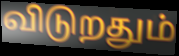
விடுறதும்